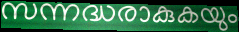
സന്നദ്ധരാകുകയും